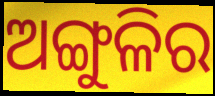
ଅଙ୍ଗୁଳିର